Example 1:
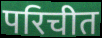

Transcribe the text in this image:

परिचीत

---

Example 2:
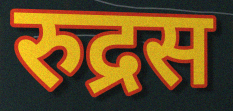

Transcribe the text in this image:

रुद्रस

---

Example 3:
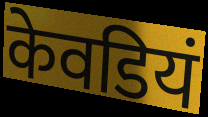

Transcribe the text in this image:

केवडियं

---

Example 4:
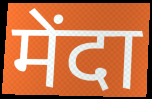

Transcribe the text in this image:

मेंदा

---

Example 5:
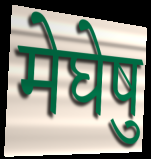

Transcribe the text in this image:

मेघेषु